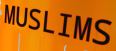
MUSLIMS